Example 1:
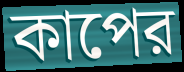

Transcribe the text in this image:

কাপের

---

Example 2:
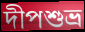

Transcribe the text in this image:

দীপশুভ্র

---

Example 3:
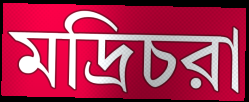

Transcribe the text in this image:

মদ্রিচরা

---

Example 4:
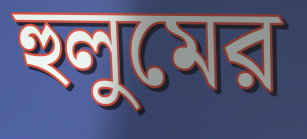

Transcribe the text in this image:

হুলুমের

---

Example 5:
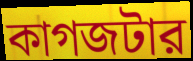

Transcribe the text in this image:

কাগজটার